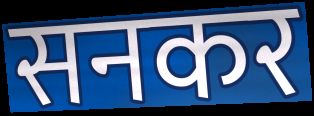
सनकर